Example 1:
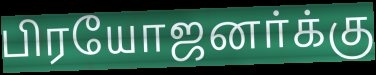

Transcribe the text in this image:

பிரயோஜனர்க்கு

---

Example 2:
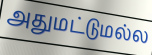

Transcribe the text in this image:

அதுமட்டுமல்ல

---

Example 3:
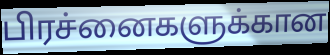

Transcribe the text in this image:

பிரச்னைகளுக்கான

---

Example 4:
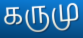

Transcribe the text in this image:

கருமு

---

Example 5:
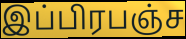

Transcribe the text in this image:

இப்பிரபஞ்ச